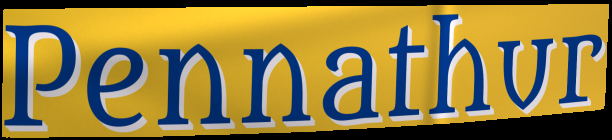
Pennathur